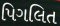
પિગલિત